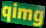
qimg